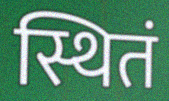
स्थितं